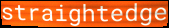
straightedge